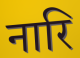
नारि